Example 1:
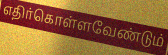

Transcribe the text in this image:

எதிர்கொள்ளவேண்டும்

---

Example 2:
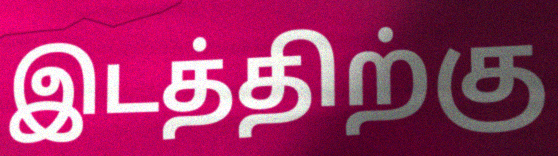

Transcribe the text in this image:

இடத்திற்கு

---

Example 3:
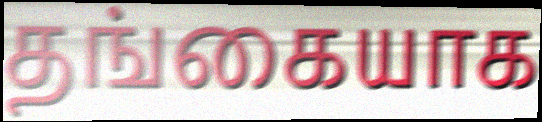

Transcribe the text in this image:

தங்கையாக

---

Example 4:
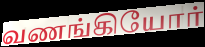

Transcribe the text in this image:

வணங்கியோர்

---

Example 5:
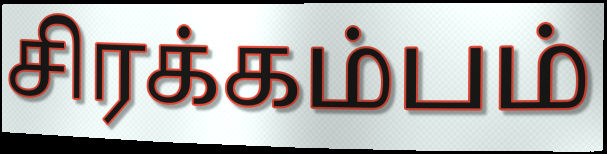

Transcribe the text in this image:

சிரக்கம்பம்